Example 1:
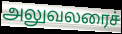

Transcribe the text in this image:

அலுவலரைச்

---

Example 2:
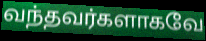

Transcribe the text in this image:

வந்தவர்களாகவே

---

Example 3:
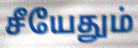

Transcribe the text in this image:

சீயேதும்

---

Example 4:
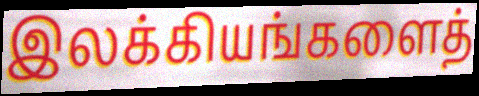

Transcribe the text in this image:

இலக்கியங்களைத்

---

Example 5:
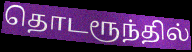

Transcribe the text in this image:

தொடரூந்தில்